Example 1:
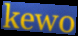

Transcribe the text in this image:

kewo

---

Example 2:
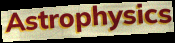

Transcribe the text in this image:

Astrophysics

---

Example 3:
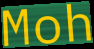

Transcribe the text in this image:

Moh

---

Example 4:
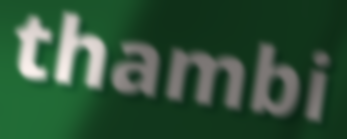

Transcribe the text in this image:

thambi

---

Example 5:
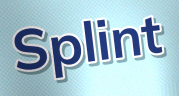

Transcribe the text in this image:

Splint